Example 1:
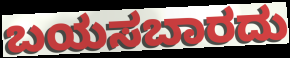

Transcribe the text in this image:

ಬಯಸಬಾರದು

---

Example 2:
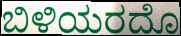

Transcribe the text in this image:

ಬಿಳಿಯರದೊ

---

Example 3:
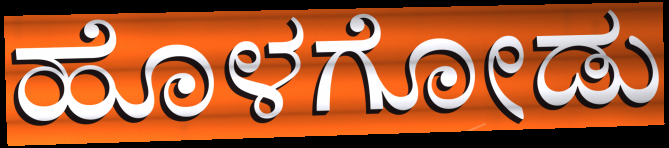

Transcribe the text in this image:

ಹೊಳಗೋಡು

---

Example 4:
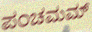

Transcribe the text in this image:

ಪಂಚಮಮ್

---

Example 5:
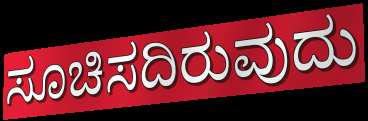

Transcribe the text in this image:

ಸೂಚಿಸದಿರುವುದು